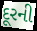
દૂરની